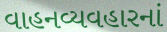
વાહનવ્યવહારનાં